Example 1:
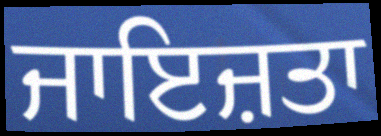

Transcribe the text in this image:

ਜਾਇਜ਼ਤਾ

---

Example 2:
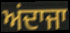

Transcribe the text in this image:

ਅਂਦਾਜਾ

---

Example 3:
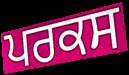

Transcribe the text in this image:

ਪਰਕਸ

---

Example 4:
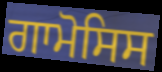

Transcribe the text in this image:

ਗਾਮੋਸਿਸ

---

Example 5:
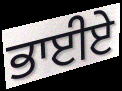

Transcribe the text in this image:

ਭਾਈਏ